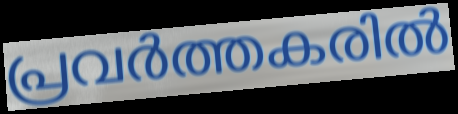
പ്രവർത്തകരിൽ